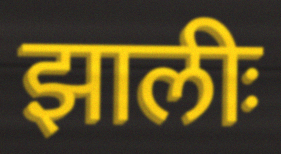
झालीः